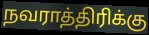
நவராத்திரிக்கு